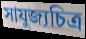
সাযুজ্যচিত্র